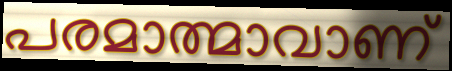
പരമാത്മാവാണ്